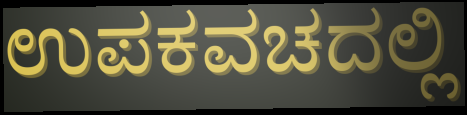
ಉಪಕವಚದಲ್ಲಿ